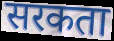
सरकता